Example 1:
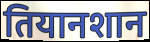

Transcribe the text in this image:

तियानशान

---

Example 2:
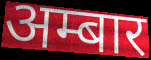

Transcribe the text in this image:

अम्बार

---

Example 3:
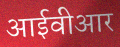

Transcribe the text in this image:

आईवीआर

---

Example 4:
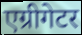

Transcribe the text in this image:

एग्रीगेटर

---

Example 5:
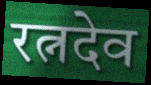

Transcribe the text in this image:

रत्नदेव